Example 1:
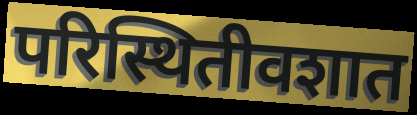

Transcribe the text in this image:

परिस्थितीवशात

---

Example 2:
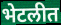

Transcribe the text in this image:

भेटलीत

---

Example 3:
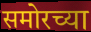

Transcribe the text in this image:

समोरच्या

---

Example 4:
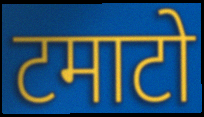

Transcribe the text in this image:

टमाटो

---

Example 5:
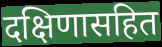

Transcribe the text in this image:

दक्षिणासहित